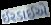
ઈરડાઈએ